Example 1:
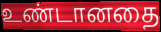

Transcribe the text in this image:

உண்டானதை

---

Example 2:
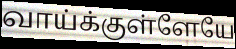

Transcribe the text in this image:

வாய்க்குள்ளேயே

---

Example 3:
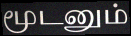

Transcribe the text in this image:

மூடனும்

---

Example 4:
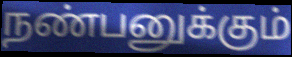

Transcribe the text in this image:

நண்பனுக்கும்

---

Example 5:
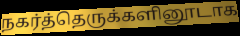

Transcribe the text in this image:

நகர்த்தெருக்களினூடாக